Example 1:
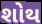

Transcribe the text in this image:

શોથ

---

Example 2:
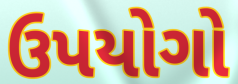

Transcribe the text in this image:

ઉપયોગો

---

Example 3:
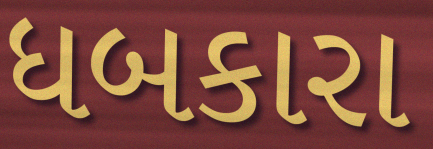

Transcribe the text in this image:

ધબકારા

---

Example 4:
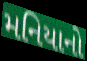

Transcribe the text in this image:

મનિયાનો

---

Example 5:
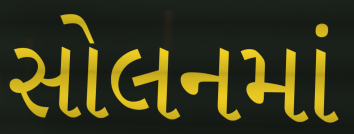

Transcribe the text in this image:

સોલનમાં